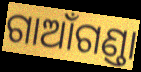
ଗାଆଁଗଣ୍ଡା